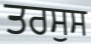
ਤਰਸੁਸ